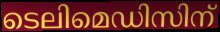
ടെലിമെഡിസിന്